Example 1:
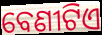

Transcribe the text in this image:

ବେଣୀଟିଏ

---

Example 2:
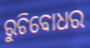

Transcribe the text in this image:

ରୁଚିବୋଧର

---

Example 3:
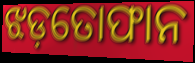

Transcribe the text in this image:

ଝଡ଼ତୋଫାନ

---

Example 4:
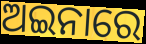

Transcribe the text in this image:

ଅଇନାରେ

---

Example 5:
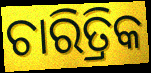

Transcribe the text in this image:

ଚାରିତ୍ରିକ